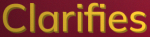
Clarifies